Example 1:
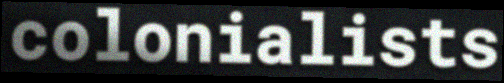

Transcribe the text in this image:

colonialists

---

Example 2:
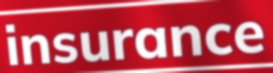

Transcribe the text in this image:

insurance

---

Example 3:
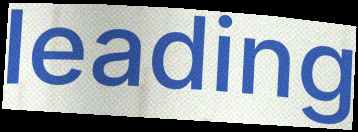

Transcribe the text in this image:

leading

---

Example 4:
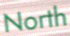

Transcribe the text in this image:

North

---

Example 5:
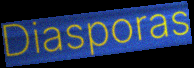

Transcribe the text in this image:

Diasporas